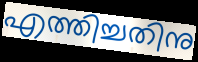
എത്തിച്ചതിനു